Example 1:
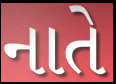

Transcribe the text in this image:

નાતે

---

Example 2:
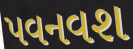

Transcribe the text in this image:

પવનવશ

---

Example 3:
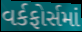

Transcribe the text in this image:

વર્કફોર્સમાં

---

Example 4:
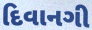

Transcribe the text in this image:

દિવાનગી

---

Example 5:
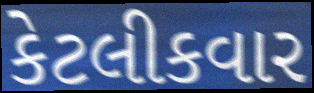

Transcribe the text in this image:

કેટલીકવાર